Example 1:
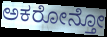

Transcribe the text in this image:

ಅಕರೋನ್ತೋ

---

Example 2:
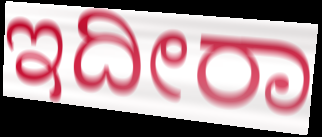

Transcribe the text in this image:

ಇದೀರಾ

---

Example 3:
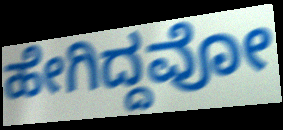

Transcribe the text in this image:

ಹೇಗಿದ್ದವೋ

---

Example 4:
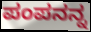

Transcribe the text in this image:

ಪಂಪನನ್ನ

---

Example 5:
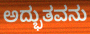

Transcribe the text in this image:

ಅದ್ಭುತವನು